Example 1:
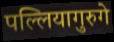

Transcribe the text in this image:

पल्लियागुरुगे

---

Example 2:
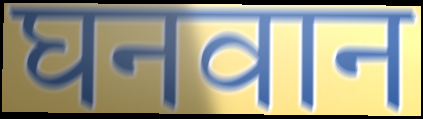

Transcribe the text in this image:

घनवान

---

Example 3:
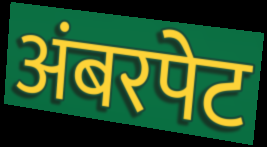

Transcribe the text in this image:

अंबरपेट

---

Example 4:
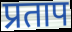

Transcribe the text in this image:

प्रताप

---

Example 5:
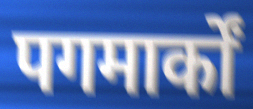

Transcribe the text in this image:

पगमार्कों